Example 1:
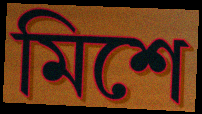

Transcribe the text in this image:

মিশে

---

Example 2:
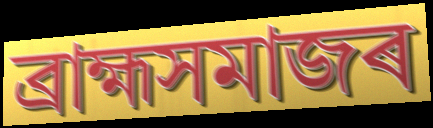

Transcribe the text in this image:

ব্ৰাহ্মসমাজৰ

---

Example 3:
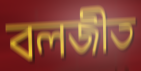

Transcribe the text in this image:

বলজীত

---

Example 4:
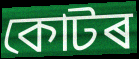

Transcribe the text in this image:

কোটৰ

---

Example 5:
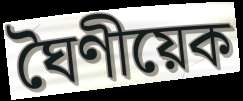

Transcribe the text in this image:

ঘৈণীয়েক